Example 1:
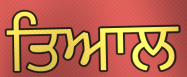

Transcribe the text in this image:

ਤਿਆਲ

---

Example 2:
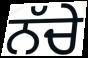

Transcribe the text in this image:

ਨੱਚੇ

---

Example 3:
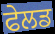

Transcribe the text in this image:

ਫੇਲਡ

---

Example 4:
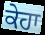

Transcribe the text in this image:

ਕੇਹਾ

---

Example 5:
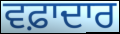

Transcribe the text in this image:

ਵਫ਼ਾਦਾਰ